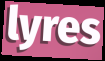
lyres